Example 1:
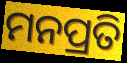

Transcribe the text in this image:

ମନପ୍ରତି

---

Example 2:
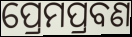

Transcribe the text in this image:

ପ୍ରେମପ୍ରବଣ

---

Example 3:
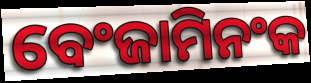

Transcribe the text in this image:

ବେଂଜାମିନଂକ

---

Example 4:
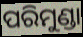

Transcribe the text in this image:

ପରିମୁଣ୍ଡା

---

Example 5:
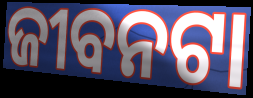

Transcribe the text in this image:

ଜୀବନଟା